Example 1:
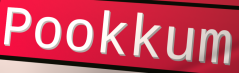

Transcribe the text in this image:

Pookkum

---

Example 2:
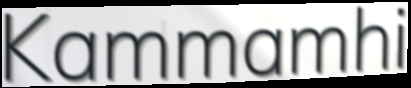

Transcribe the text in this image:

Kammamhi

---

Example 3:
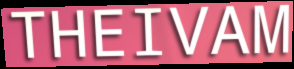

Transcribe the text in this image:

THEIVAM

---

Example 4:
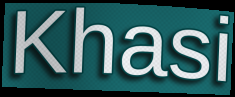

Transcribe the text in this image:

Khasi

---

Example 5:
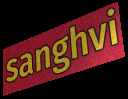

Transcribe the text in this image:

sanghvi